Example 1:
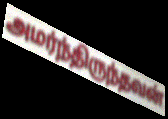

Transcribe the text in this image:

அமர்ந்திருந்தவன்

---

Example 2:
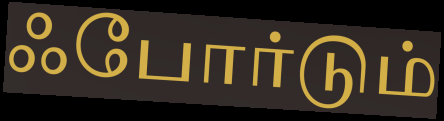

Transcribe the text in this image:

ஃபோர்டும்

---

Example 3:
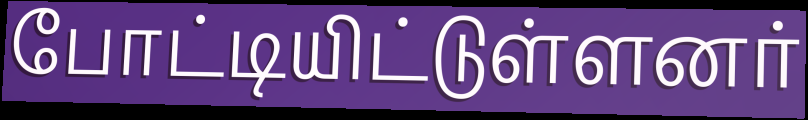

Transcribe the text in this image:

போட்டியிட்டுள்ளனர்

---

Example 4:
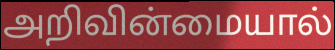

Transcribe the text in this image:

அறிவின்மையால்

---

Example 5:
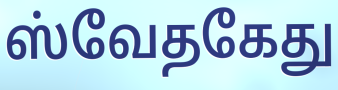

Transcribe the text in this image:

ஸ்வேதகேது